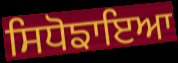
ਸਿਧੋਙਾਇਆ